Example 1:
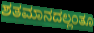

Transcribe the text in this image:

ಶತಮಾನದಲ್ಲಂತೂ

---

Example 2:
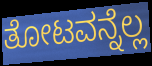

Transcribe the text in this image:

ತೋಟವನ್ನೆಲ್ಲ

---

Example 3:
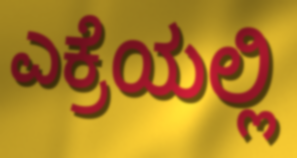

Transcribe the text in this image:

ಎಕ್ರೆಯಲ್ಲಿ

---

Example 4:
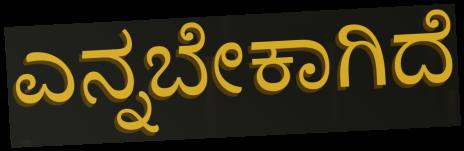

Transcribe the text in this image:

ಎನ್ನಬೇಕಾಗಿದೆ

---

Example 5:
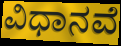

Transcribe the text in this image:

ವಿಧಾನವೆ